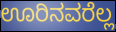
ಊರಿನವರೆಲ್ಲ